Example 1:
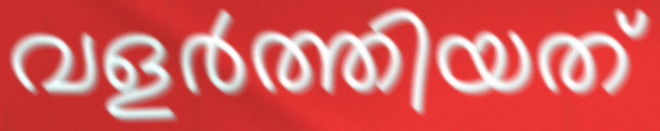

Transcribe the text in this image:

വളർത്തിയത്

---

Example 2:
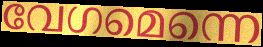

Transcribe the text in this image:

വേഗമെന്നെ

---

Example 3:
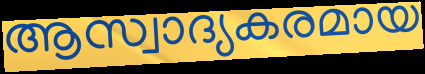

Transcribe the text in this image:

ആസ്വാദ്യകരമായ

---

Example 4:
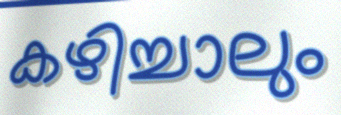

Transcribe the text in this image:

കഴിച്ചാലും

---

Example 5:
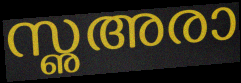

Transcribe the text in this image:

സൢഅരാ